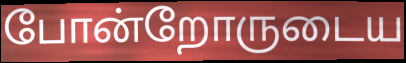
போன்றோருடைய